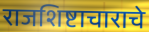
राजशिष्टाचाराचे